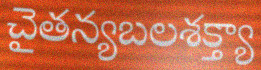
చైతన్యబలశక్త్యా